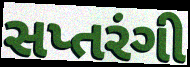
સપ્તરંગી